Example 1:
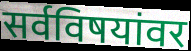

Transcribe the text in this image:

सर्वविषयांवर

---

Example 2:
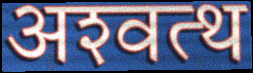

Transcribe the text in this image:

अश्वत्थ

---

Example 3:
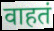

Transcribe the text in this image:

वाहतं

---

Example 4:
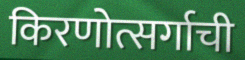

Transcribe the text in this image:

किरणोत्सर्गाची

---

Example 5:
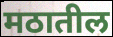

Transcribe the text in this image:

मठातील